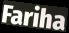
Fariha